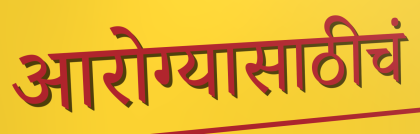
आरोग्यासाठीचं